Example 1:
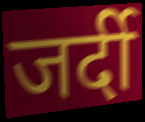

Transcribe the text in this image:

जर्दी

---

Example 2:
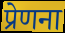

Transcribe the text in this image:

प्रेणना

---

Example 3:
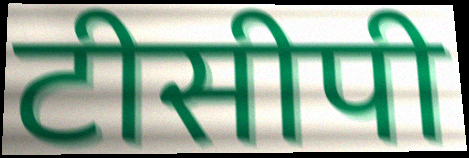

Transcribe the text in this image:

टीसीपी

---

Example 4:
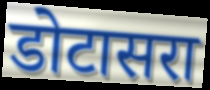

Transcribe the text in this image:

डोटासरा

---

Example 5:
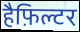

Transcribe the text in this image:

हैफ़िल्टर